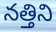
నత్తిని